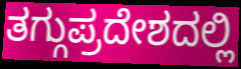
ತಗ್ಗುಪ್ರದೇಶದಲ್ಲಿ